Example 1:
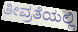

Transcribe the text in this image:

ತೀವ್ರತೆಯಲ್ಲಿ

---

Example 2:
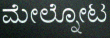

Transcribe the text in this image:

ಮೇಲ್ನೋಟ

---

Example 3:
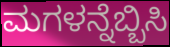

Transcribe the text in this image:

ಮಗಳನ್ನೆಬ್ಬಿಸಿ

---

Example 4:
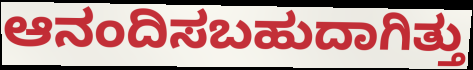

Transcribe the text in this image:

ಆನಂದಿಸಬಹುದಾಗಿತ್ತು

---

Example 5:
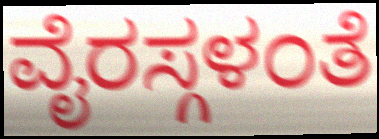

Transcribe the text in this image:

ವೈರಸ್ಗಳಂತೆ